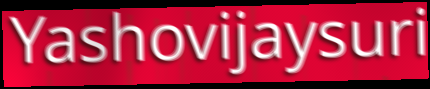
Yashovijaysuri